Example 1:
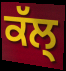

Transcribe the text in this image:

ਕੱਲ੍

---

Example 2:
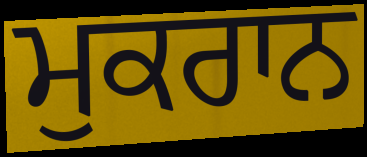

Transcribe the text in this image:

ਮੁਕਰਾਨ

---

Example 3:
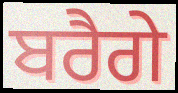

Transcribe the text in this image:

ਬਰੈਗੇ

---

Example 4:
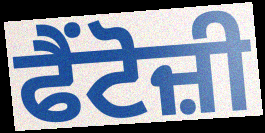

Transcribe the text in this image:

ਫੈਂਟੋਜ਼ੀ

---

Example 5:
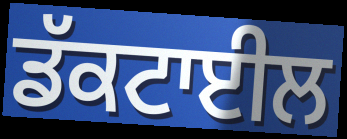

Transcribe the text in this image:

ਡੱਕਟਾਈਲ